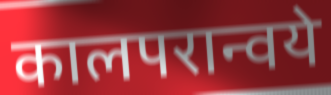
कालपरान्वये